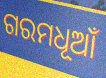
ଗରମଧୂଆଁ